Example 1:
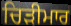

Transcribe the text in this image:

ਚਿੜੀਮਾਰ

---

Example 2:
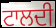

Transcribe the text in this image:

ਟਾਲਦੀ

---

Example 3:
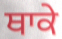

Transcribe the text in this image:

ਥਾਕੇ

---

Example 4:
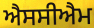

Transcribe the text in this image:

ਐਸਸੀਐਮ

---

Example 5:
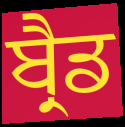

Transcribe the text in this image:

ਬ੍ਰੈਡ